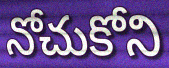
నోచుకోని